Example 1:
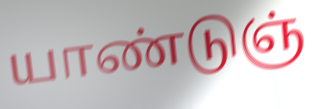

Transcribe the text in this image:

யாண்டுஞ்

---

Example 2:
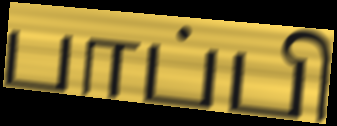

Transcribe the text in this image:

பாப்பி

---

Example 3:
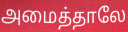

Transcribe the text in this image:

அமைத்தாலே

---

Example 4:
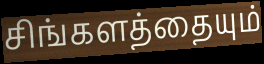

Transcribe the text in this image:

சிங்களத்தையும்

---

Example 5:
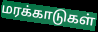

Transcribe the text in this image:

மரக்காடுகள்